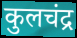
कुलचंद्र